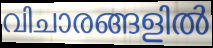
വിചാരങ്ങളിൽ